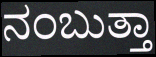
ನಂಬುತ್ತಾ